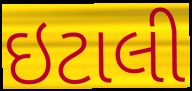
ઇટાલી